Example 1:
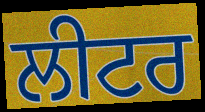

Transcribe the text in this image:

ਲੀਟਰ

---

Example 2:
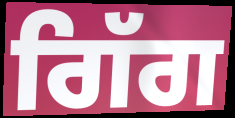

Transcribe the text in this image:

ਗਿੱਗ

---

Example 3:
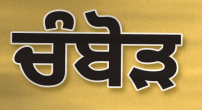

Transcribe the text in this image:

ਚੰਬੋੜ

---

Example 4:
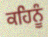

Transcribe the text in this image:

ਕਹਿਨੂੰ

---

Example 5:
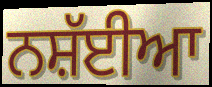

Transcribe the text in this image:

ਨਸ਼ੱਈਆ